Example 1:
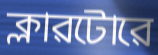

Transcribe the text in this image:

ক্লাৱটোৱে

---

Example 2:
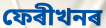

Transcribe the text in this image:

ফেৰীখনৰ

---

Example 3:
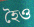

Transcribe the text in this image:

হৈও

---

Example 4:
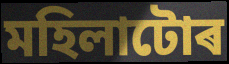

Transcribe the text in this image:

মহিলাটোৰ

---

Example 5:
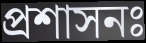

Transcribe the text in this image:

প্ৰশাসনঃ